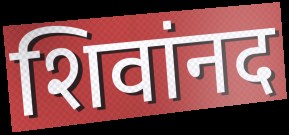
शिवांनद